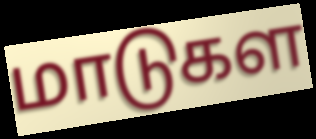
மாடுகள